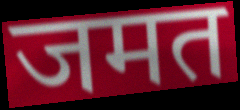
जमत